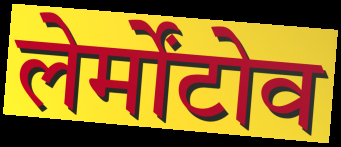
लेर्मोंटोव